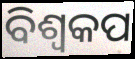
ବିଶ୍ୱକପ